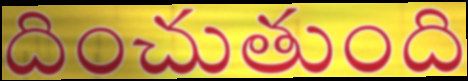
దించుతుంది